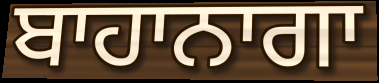
ਬਾਹਾਨਾਗਾ